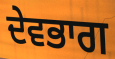
ਦੇਵਭਾਗ